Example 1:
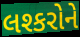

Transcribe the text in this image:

લશ્કરોને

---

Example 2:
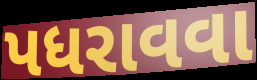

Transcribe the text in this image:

પધરાવવા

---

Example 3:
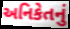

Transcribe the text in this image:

અનિકેતનું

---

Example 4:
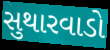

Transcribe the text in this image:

સુથારવાડો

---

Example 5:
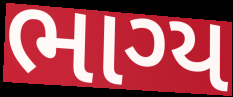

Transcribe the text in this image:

ભાગ્ય